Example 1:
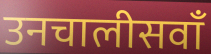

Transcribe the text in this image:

उनचालीसवाँ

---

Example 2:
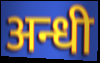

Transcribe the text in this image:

अन्धी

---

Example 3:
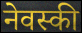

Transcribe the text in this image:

नेवस्की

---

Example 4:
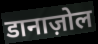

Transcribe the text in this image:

डानाज़ोल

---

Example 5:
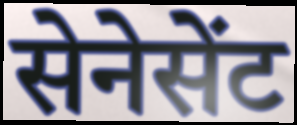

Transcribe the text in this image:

सेनेसेंट